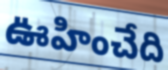
ఊహించేది